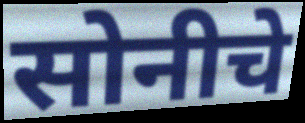
सोनीचे